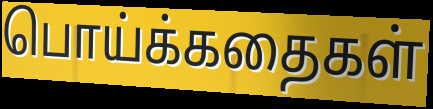
பொய்க்கதைகள்